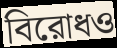
বিরোধও